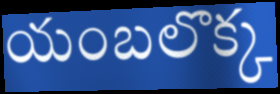
యంబలొక్క